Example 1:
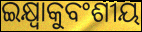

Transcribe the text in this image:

ଇକ୍ଷ୍ୱାକୁବଂଶୀୟ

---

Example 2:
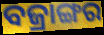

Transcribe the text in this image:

ବଜ୍ରାଙ୍ଗର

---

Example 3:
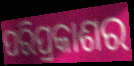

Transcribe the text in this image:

ପରିପ୍ରକାଶର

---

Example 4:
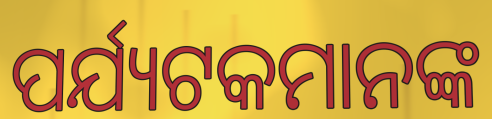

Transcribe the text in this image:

ପର୍ଯ୍ୟଟକମାନଙ୍କ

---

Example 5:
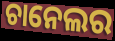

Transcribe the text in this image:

ଚାନେଲର